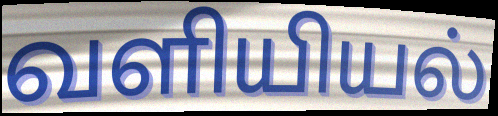
வளியியல்